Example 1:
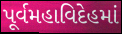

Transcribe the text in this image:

પૂર્વમહાવિદેહમાં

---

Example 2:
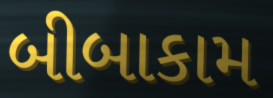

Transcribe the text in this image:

બીબાકામ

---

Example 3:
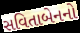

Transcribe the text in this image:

સવિતાબેનનો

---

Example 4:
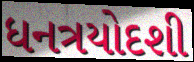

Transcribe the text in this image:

ધનત્રયોદશી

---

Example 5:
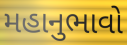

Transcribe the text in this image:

મહાનુભાવો